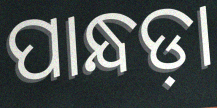
ପାନ୍ଧଡ଼ା